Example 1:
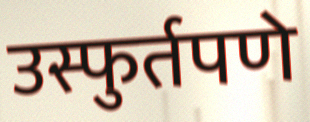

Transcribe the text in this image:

उस्फुर्तपणे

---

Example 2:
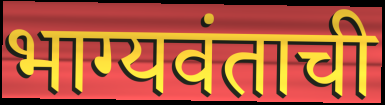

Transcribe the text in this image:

भाग्यवंताची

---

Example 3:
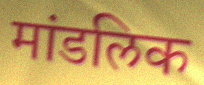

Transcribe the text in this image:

मांडलिक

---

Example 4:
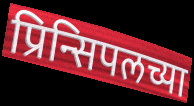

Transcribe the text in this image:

प्रिन्सिपलच्या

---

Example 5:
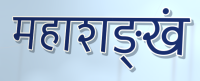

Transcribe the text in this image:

महाशङ्खं